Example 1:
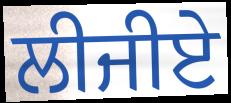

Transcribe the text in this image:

ਲੀਜੀਏ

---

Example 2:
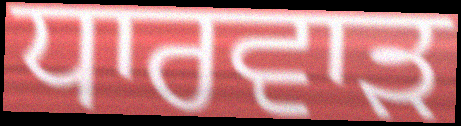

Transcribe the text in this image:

ਧਾਰਵਾੜ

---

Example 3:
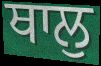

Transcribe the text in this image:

ਥਾਲੁ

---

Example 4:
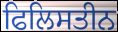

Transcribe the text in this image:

ਫਿਲਿਸਤੀਨ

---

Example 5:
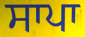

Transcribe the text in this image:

ਸਾਪਾ